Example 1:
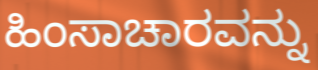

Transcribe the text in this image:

ಹಿಂಸಾಚಾರವನ್ನು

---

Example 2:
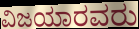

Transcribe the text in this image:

ವಿಜಯಾರವರು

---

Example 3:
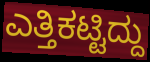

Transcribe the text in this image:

ಎತ್ತಿಕಟ್ಟಿದ್ದು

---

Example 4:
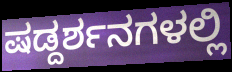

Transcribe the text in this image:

ಷಡ್ದರ್ಶನಗಳಲ್ಲಿ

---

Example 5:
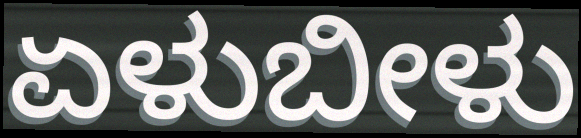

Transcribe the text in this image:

ಏಳುಬೀಳು